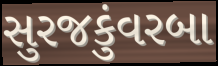
સુરજકુંવરબા